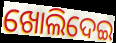
ଖୋଲିଦେଇ